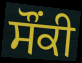
ਸੌਂਕੀ